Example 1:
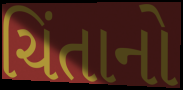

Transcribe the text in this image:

ચિંતાનો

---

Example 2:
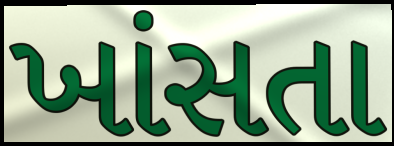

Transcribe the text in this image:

ખાંસતા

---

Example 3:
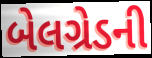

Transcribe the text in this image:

બેલગ્રેડની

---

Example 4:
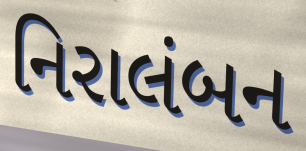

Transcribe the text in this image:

નિરાલંબન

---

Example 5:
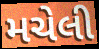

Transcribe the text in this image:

મચેલી